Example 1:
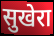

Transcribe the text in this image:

सुखेरा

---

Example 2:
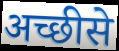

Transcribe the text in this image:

अच्छीसे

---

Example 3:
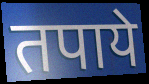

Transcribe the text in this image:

तपाये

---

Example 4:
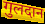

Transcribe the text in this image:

गुलदान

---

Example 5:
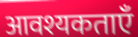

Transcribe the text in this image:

आवश्यकताएँ